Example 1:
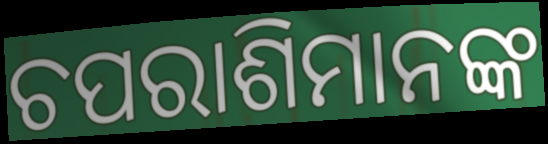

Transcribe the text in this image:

ଚପରାଶିମାନଙ୍କ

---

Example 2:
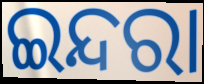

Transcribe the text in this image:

ଇନ୍ଦରା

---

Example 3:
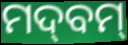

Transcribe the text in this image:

ମଦ୍‌ବମ୍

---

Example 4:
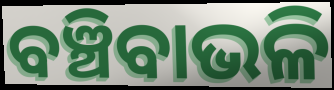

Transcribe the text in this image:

ବଞ୍ଚିବାଭଳି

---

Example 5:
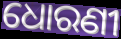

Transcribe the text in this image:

ଧୋରଣୀ